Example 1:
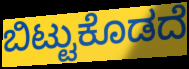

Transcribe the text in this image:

ಬಿಟ್ಟುಕೊಡದೆ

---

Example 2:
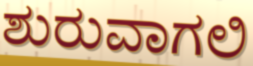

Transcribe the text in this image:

ಶುರುವಾಗಲಿ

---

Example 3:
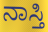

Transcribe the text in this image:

ನಾಸ್ತಿ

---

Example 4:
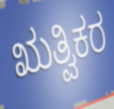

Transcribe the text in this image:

ಋತ್ವಿಕರ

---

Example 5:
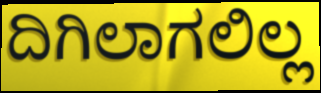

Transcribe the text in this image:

ದಿಗಿಲಾಗಲಿಲ್ಲ